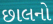
છાલનો